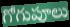
గోగుపూలు